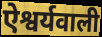
ऐश्वर्यवाली